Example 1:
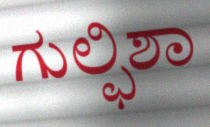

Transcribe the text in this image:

ಗುಲ್ಫಿಶಾ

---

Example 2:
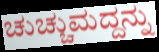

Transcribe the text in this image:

ಚುಚ್ಚುಮದ್ದನ್ನು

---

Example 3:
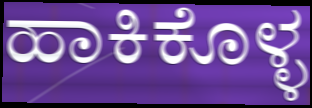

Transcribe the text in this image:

ಹಾಕಿಕೊಳ್ಳ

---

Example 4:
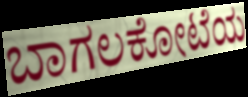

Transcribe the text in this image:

ಬಾಗಲಕೋಟೆಯ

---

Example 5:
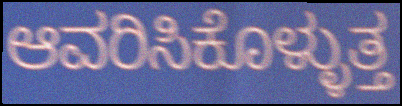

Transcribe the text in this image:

ಆವರಿಸಿಕೊಳ್ಳುತ್ತ